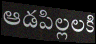
ఆడపిల్లలకి